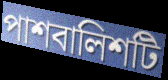
পাশবালিশটি